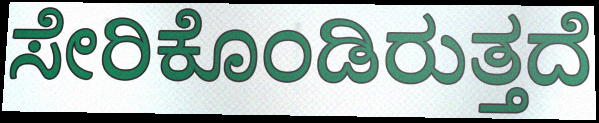
ಸೇರಿಕೊಂಡಿರುತ್ತದೆ